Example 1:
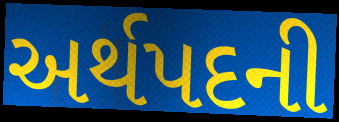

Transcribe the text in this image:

અર્થપદની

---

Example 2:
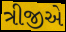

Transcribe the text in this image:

ત્રીજીએ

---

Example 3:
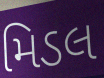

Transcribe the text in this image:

મિડલ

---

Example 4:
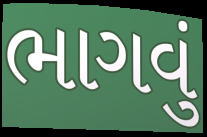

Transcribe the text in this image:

ભાગવું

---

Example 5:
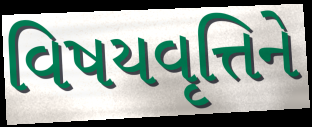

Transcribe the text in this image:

વિષયવૃત્તિને